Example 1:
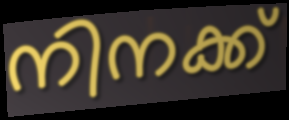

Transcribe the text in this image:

നിനക്ക്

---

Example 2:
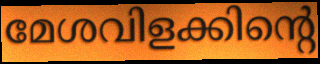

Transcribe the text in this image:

മേശവിളക്കിന്റെ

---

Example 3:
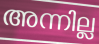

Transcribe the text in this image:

അന്നില്ല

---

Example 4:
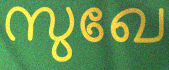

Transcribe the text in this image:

സുഖേ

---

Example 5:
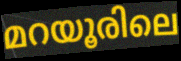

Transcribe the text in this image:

മറയൂരിലെ